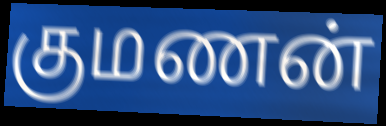
குமணன்